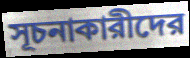
সূচনাকারীদের